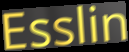
Esslin